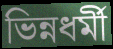
ভিন্নধর্মী